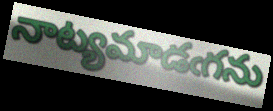
నాట్యమాడఁగను